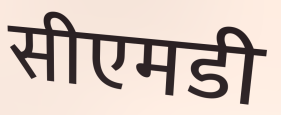
सीएमडी